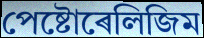
পেষ্টোৰেলিজিম